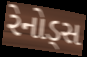
રેનોડ્સ